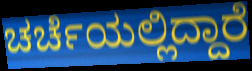
ಚರ್ಚೆಯಲ್ಲಿದ್ದಾರೆ